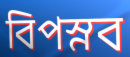
বিপস্নব